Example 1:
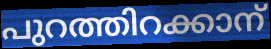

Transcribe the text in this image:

പുറത്തിറക്കാന്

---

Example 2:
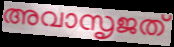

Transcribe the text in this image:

അവാസൃജത്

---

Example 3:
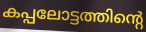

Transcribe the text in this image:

കപ്പലോട്ടത്തിന്റെ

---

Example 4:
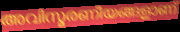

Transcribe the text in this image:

അവിസ്മരണീയങ്ങളാണ്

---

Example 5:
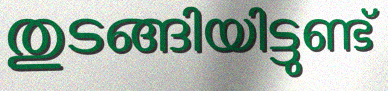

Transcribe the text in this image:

തുടങ്ങിയിട്ടുണ്ട്